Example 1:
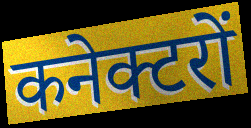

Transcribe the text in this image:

कनेक्टरों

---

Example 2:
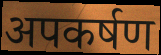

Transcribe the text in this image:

अपकर्षण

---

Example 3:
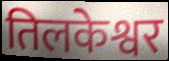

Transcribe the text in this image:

तिलकेश्वर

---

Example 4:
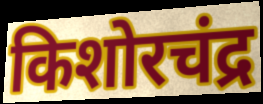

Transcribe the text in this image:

किशोरचंद्र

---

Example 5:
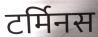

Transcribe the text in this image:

टर्मिनस